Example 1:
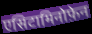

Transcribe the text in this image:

एसिटामिनोफ़ेन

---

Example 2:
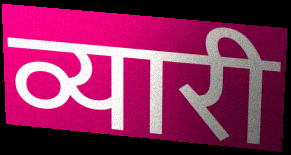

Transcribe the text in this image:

व्यारी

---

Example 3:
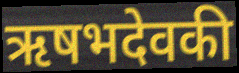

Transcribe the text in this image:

ऋषभदेवकी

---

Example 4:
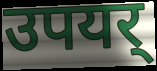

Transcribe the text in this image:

उपयर्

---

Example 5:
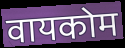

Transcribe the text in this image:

वायकोम